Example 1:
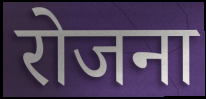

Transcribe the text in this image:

रोजना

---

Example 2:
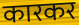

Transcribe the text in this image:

कारकर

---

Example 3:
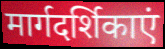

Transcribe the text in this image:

मार्गदर्शिकाएं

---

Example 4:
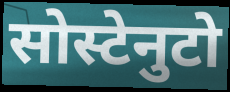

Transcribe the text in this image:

सोस्टेनुटो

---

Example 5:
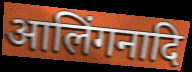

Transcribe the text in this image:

आलिंगनादि